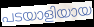
പടയാളിയായ